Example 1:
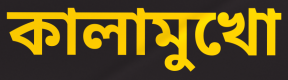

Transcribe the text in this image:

কালামুখো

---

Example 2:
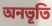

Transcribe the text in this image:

অনভূতি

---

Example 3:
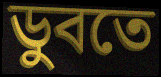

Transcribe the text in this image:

ডুবতে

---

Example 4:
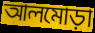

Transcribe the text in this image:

আলমোড়া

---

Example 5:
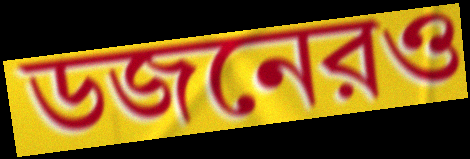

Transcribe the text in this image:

ডজনেরও